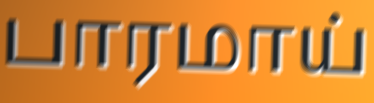
பாரமாய்